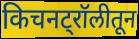
किचनट्रॉलीतून